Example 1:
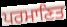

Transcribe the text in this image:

ਪਰਮਾਣਿਤ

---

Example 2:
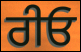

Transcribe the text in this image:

ਰੀਓ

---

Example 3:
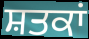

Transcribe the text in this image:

ਸ਼ਤਕਾਂ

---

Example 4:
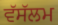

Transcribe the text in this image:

ਵੱਸੱਲਮ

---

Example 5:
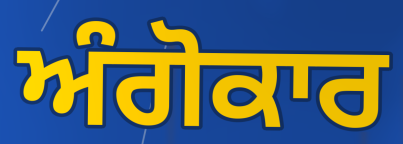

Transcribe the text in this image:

ਅੰਗੋਕਾਰ